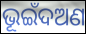
ଭୂଇଁଦଅଣ